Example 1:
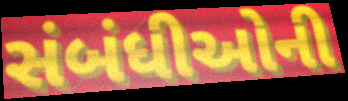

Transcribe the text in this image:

સંબંધીઓની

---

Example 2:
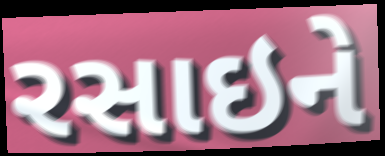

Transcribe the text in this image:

રસાઇને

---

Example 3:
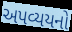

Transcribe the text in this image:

અપવ્યયનો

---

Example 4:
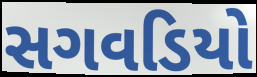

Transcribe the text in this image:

સગવડિયો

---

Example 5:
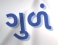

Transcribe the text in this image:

ગુળં